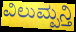
ವಿಲುಮ್ಪನ್ತಿ